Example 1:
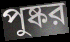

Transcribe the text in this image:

পুষ্কর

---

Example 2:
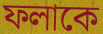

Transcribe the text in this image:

ফলাকে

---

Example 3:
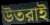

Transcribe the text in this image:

উতরাই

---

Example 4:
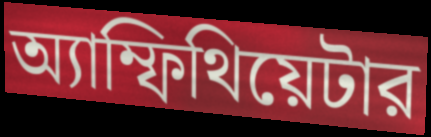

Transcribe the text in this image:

অ্যাম্ফিথিয়েটার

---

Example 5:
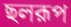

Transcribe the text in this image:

ছলরূপ